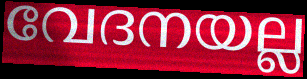
വേദനയല്ല